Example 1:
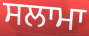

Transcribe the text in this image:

ਸਲਾਮਾ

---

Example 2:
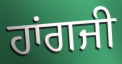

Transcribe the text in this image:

ਹਾਂਗਜੀ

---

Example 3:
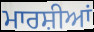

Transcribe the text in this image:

ਮਾਰਸ਼ੀਆਂ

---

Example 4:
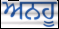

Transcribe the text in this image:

ਅਨਹੂ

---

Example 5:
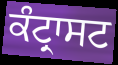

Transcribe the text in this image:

ਕੰਟ੍ਰਾਸਟ